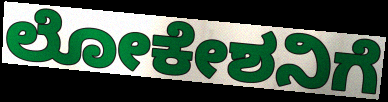
ಲೋಕೇಶನಿಗೆ